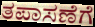
ತಪಾಸಣೆಗೆ